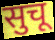
सुचू